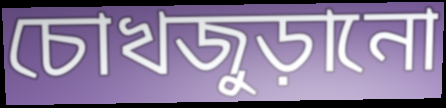
চোখজুড়ানো